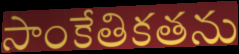
సాంకేతికతను